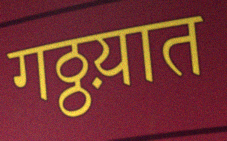
गठ्ठय़ात